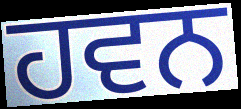
ਹਵਨ